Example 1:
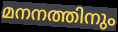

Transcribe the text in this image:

മനനത്തിനും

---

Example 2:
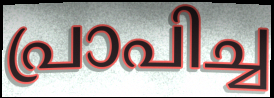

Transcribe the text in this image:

പ്രാപിച്ച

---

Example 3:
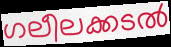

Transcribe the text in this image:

ഗലീലക്കടൽ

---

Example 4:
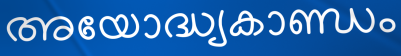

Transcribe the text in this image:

അയോദ്ധ്യകാണ്ഡം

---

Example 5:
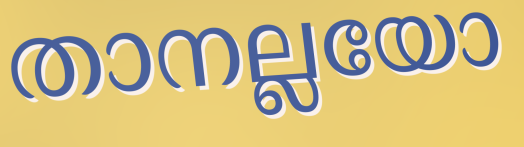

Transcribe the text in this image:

താനല്ലയോ